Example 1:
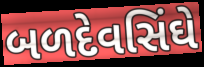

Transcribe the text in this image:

બળદેવસિંઘે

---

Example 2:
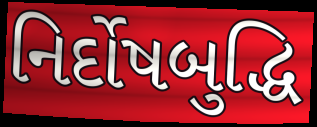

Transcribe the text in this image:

નિર્દોષબુદ્ધિ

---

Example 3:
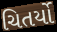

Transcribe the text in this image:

ચિતર્યો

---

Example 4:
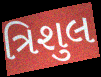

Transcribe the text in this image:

ત્રિશુલ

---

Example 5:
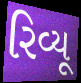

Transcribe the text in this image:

રિવ્યૂ